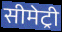
सीमेट्री